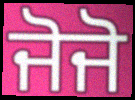
ਜੋਜੋ